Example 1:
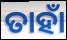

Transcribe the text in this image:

ତାହାଁ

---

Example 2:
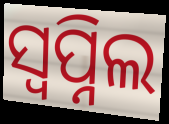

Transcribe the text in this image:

ସ୍ୱପ୍ନିଲ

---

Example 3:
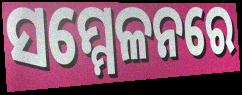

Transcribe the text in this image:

ସମ୍ମେଳନରେ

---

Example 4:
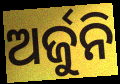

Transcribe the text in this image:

ଅର୍ଜୁନି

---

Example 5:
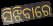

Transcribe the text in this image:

ସିଝିବାରେ